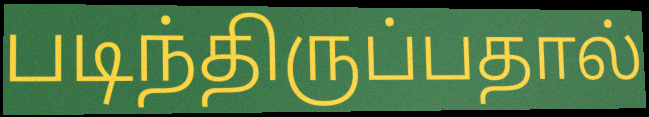
படிந்திருப்பதால்